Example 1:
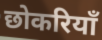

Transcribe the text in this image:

छोकरियाँ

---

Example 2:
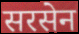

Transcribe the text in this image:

सरसेन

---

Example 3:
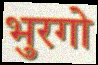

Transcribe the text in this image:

भुरगो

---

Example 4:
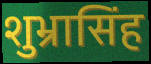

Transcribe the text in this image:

शुभ्रासिंह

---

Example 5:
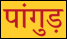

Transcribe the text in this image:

पांगुड़